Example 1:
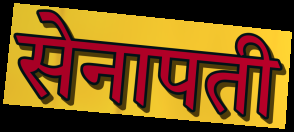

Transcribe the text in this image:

सेनापती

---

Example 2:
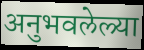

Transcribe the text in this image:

अनुभवलेल्या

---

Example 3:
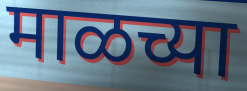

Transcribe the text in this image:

माळच्या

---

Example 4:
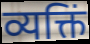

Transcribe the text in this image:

व्यक्तिं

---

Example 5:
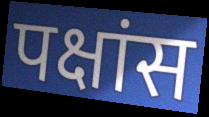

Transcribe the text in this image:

पक्षांस